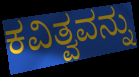
ಕವಿತ್ವವನ್ನು